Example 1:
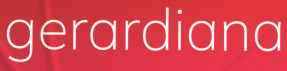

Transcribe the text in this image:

gerardiana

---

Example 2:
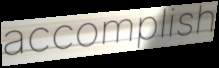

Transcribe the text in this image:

accomplish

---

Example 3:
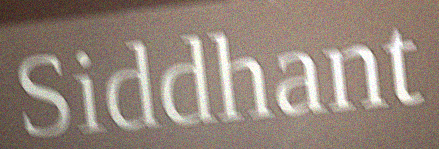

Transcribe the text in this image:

Siddhant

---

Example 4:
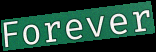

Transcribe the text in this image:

Forever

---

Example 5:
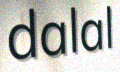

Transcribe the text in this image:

dalal